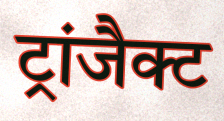
ट्रांजैक्ट